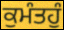
ਕੁਮੰਤਹੁੰ